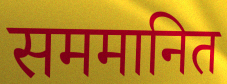
सममानित